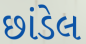
છાંડેલ